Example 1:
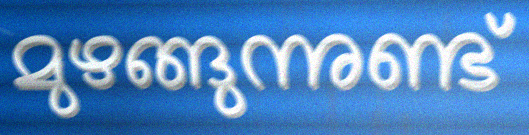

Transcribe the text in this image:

മുഴങ്ങുന്നുണ്ട്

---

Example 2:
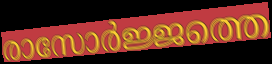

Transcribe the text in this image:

രാസോർജ്ജത്തെ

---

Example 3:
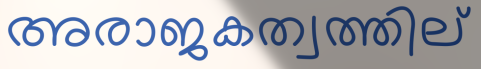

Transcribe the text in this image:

അരാജകത്വത്തില്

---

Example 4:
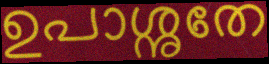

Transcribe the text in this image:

ഉപാശ്നുതേ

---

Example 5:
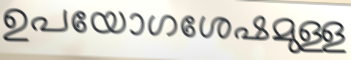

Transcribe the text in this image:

ഉപയോഗശേഷമുള്ള